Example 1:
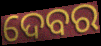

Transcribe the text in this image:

ଦେବର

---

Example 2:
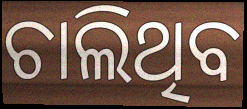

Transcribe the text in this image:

ଚାଲିଥିବ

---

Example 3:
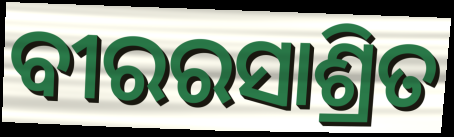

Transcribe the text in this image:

ବୀରରସାଶ୍ରିତ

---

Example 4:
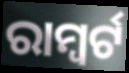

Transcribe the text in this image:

ରାମ୍ବର୍ଟ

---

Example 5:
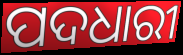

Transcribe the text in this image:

ପଦଧାରୀ